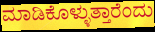
ಮಾಡಿಕೊಳ್ಳುತ್ತಾರೆಂದು